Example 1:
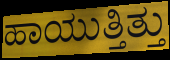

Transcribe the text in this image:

ಹಾಯುತ್ತಿತ್ತು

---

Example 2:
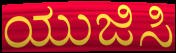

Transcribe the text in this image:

ಯುಜಿಸಿ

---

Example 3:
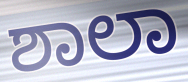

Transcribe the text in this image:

ಶಾಲಾ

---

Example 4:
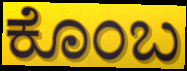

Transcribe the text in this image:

ಕೊಂಬ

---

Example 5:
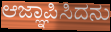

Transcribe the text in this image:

ಆಜ್ಞಾಪಿಸಿದನು